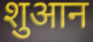
शुआन